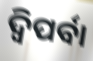
ଦ୍ଵିପର୍ବା